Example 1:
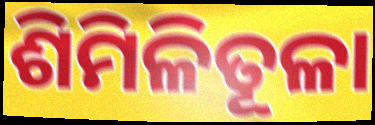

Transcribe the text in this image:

ଶିମିଳିତୂଳା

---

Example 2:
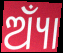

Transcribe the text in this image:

ଅ୍ୟାଁ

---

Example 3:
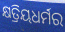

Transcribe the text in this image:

କ୍ଷତ୍ରିୟଧର୍ମର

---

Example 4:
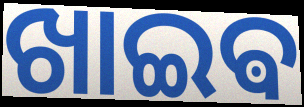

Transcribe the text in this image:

ଖାଇଵ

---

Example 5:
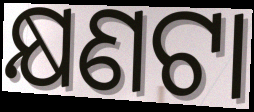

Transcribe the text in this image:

କ୍ଷଣଟା